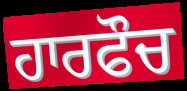
ਹਾਰਫੌਚ